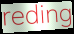
reding